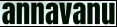
annavanu